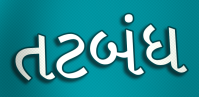
તટબંધ